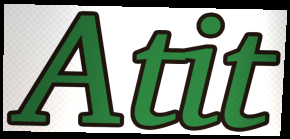
Atit